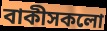
বাকীসকলো